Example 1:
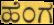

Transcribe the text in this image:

ಹೆಂಗ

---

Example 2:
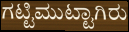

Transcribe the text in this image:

ಗಟ್ಟಿಮುಟ್ಟಾಗಿರು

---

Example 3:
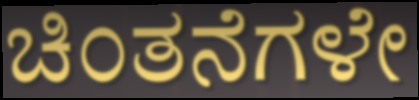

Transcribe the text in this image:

ಚಿಂತನೆಗಳೇ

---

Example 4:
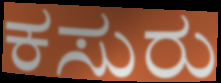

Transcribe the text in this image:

ಕಸುರು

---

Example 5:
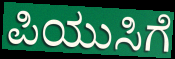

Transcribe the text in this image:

ಪಿಯುಸಿಗೆ